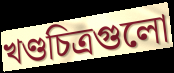
খণ্ডচিত্রগুলো